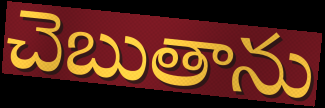
చెబుతాను